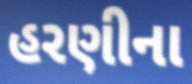
હરણીના